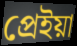
প্রেইয়া